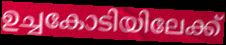
ഉച്ചകോടിയിലേക്ക്